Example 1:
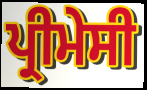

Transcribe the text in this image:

ਪ੍ਰੀਮੇਸੀ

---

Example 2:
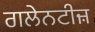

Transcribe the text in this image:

ਗਲੇਨਟੀਜ਼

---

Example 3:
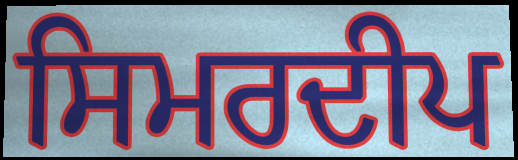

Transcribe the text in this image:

ਸਿਮਰਦੀਪ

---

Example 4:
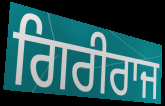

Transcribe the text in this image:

ਗਿਰੀਰਾਜ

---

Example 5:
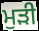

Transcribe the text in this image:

ਮੁੜੀ